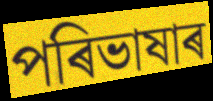
পৰিভাষাৰ